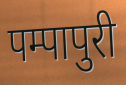
पम्पापुरी